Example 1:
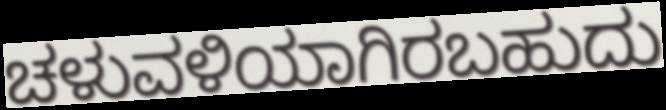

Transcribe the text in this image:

ಚಳುವಳಿಯಾಗಿರಬಹುದು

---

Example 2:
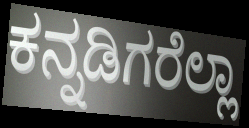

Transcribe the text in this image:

ಕನ್ನಡಿಗರೆಲ್ಲಾ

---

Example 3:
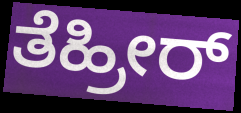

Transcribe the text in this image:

ತೆಹ್ರೀರ್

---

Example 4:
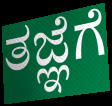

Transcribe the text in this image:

ತಜ್ಞೆಗೆ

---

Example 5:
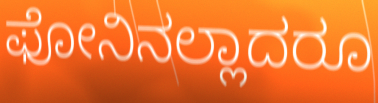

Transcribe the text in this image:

ಫೋನಿನಲ್ಲಾದರೂ